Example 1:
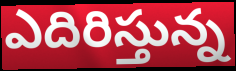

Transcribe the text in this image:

ఎదిరిస్తున్న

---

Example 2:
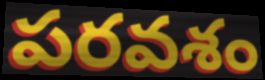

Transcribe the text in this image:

పరవశం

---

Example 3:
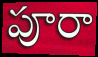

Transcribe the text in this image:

పూరా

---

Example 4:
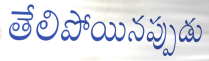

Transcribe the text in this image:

తేలిపోయినప్పుడు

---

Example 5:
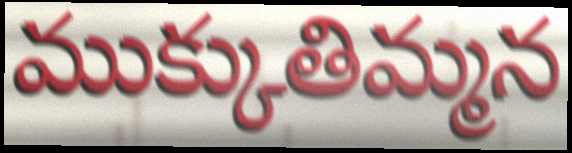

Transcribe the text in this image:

ముక్కుతిమ్మన